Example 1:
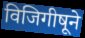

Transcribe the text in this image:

विजिगीषूने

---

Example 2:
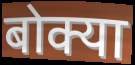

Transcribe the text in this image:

बोक्या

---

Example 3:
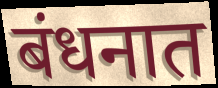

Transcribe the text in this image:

बंधनात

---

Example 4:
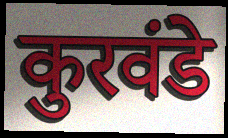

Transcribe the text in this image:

कुरवंडे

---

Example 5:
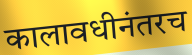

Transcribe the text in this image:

कालावधीनंतरच